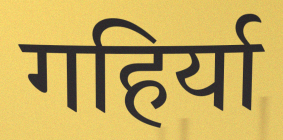
गहिर्या